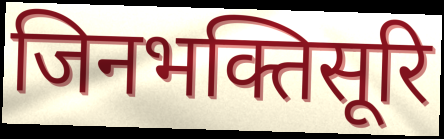
जिनभक्तिसूरि